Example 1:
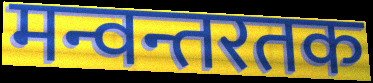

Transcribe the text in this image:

मन्वन्तरतक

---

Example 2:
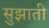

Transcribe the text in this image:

सुझाती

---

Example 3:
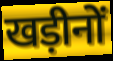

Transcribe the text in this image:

खड़ीनों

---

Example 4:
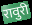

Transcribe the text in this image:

रावुरी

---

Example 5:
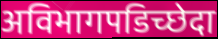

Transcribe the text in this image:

अविभागपडिच्छेदा